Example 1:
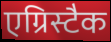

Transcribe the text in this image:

एग्रिस्टैक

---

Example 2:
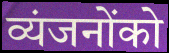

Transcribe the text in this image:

व्यंजनोंको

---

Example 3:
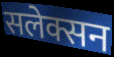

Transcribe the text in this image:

सलेक्सन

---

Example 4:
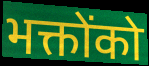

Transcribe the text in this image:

भक्तोंको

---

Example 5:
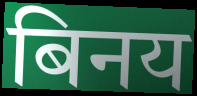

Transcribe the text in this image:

बिनय